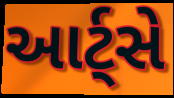
આર્ટ્સે